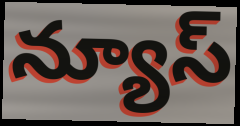
న్యూస్